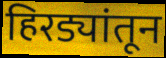
हिरड्यांतून